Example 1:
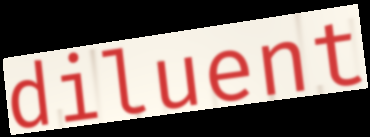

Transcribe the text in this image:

diluent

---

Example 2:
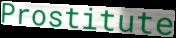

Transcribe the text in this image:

Prostitute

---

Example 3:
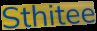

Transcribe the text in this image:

Sthitee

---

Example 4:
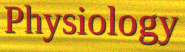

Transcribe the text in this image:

Physiology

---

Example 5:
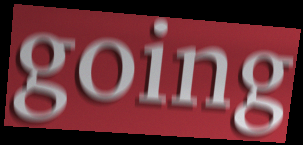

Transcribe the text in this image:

going